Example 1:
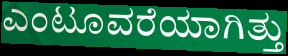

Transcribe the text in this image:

ಎಂಟೂವರೆಯಾಗಿತ್ತು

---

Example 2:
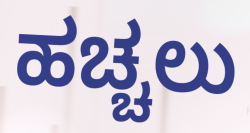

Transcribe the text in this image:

ಹಚ್ಚಲು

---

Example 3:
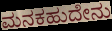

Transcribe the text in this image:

ಮನಕಹುದೇನು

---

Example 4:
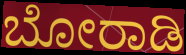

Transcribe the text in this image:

ಬೋರಾಡಿ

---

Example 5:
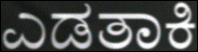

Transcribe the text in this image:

ಎಡತಾಕಿ